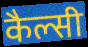
कैल्सी